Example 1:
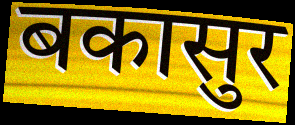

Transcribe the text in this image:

बकासुर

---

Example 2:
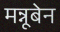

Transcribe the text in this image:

मन्नूबेन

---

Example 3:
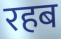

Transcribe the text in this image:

रहब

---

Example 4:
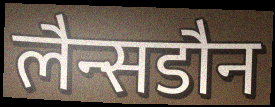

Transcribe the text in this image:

लैन्सडौन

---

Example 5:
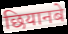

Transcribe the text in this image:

छियानबे